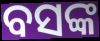
ବସଙ୍କ